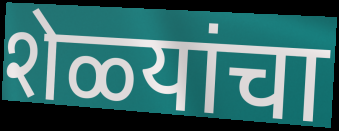
शेळ्यांचा